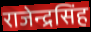
राजेन्द्रसिंह